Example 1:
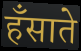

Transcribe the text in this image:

हँसाते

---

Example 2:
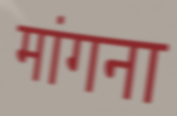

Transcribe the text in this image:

मांगना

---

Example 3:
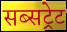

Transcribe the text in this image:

सब्सट्रेट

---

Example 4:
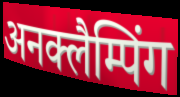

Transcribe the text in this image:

अनक्लैम्पिंग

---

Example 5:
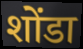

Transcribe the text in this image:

शोंडा